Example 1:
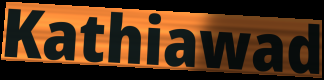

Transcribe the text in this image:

Kathiawad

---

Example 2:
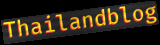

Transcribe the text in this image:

Thailandblog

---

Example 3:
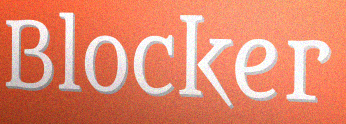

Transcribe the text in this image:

Blocker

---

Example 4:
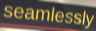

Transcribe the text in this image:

seamlessly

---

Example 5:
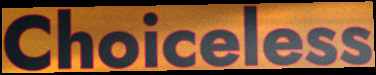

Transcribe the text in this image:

Choiceless